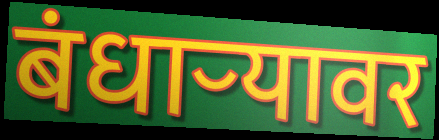
बंधाऱ्यावर